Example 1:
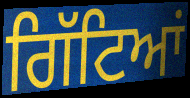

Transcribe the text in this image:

ਗਿੱਟਿਆਂ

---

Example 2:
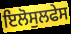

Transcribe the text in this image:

ਇਲੋਸੁਲਫੇਸ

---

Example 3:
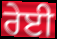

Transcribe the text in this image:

ਰੇਈ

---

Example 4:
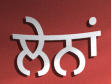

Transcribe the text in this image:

ਲੇਨਾਂ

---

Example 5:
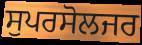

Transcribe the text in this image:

ਸੁਪਰਸੋਲਜਰ